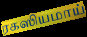
ரகஸியமாய்